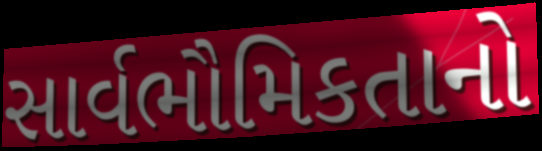
સાર્વભૌમિકતાનો